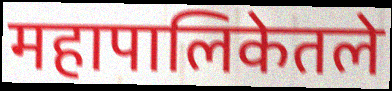
महापालिकेतले